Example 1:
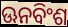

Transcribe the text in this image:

ଊନବିଂଶ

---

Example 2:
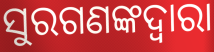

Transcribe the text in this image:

ସୁରଗଣଙ୍କଦ୍ୱାରା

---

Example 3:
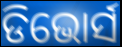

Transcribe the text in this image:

ଡିଭୋର୍ସ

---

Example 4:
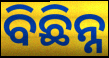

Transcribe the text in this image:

ବିଛିନ୍ନ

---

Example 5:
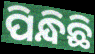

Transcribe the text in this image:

ପିନ୍ଧିଛି